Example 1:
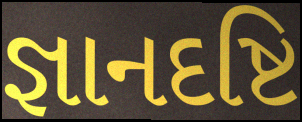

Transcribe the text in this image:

જ્ઞાનદષ્ટિ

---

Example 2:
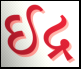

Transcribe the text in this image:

ઈદ્ર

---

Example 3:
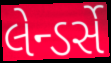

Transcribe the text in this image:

લેન્ડર્સે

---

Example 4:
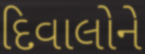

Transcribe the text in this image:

દિવાલોને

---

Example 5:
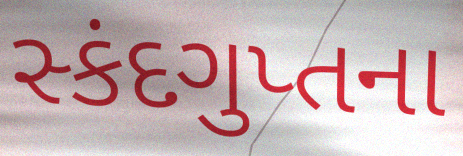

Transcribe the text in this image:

સ્કંદગુપ્તના